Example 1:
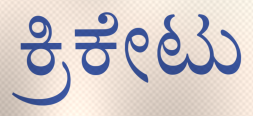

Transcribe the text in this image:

ಕ್ರಿಕೇಟು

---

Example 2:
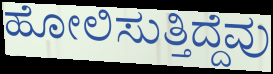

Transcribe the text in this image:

ಹೋಲಿಸುತ್ತಿದ್ದೆವು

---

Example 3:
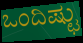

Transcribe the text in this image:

ಒಂದಿಷ್ಟು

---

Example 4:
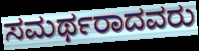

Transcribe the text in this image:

ಸಮರ್ಥರಾದವರು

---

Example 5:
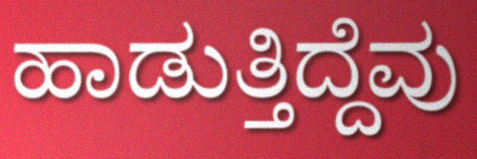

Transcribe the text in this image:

ಹಾಡುತ್ತಿದ್ದೆವು